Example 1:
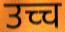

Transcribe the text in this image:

उच्‍च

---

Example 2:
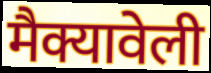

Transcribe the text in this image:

मैक्यावेली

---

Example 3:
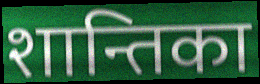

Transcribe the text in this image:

शान्तिका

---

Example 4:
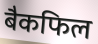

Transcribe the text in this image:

बैकफिल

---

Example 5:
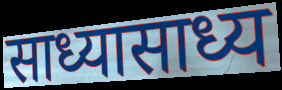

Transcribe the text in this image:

साध्यासाध्य